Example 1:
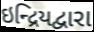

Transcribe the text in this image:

ઇન્દ્રિયદ્વારા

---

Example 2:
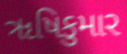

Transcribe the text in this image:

ૠષિકુમાર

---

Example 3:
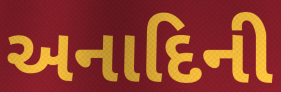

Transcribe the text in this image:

અનાદિની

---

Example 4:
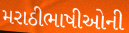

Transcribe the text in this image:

મરાઠીભાષીઓની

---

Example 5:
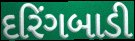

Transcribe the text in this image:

દરિંગબાડી